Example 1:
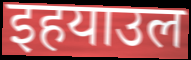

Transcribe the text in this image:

इहयाउल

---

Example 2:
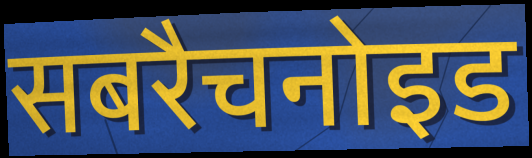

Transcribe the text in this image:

सबरैचनोइड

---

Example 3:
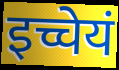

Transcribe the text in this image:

इच्चेयं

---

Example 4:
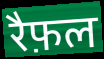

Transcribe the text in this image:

रैफ़ल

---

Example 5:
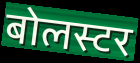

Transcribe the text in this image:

बोलस्टर